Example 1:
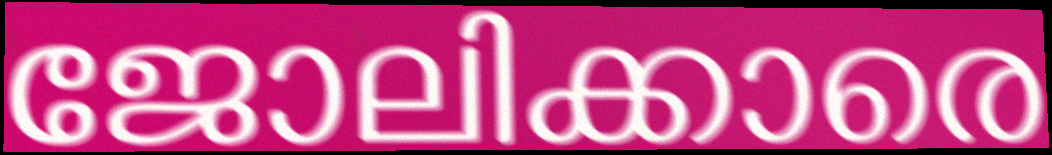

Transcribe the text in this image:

ജോലിക്കാരെ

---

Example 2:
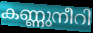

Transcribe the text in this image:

കണ്ണുനീറി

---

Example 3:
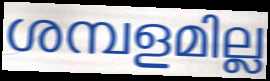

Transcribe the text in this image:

ശമ്പളമില്ല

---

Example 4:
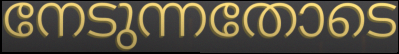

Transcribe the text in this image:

നേടുന്നതോടെ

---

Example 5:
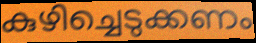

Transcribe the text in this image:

കുഴിച്ചെടുക്കണം